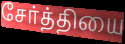
சேர்த்தியை